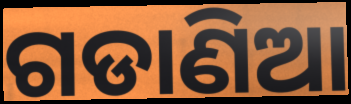
ଗଡାଣିଆ